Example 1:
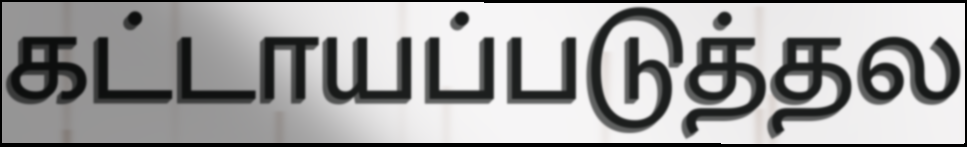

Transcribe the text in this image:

கட்டாயப்படுத்தல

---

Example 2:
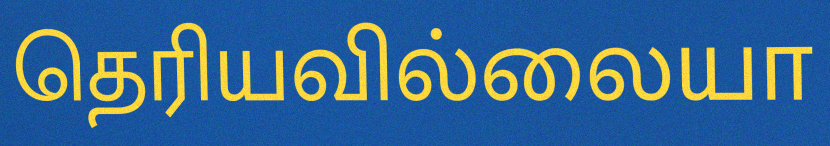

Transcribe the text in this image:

தெரியவில்லையா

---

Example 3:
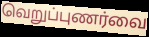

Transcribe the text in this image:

வெறுப்புணர்வை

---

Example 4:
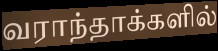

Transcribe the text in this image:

வராந்தாக்களில்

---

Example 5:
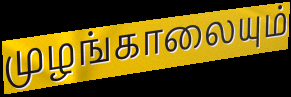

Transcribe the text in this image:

முழங்காலையும்